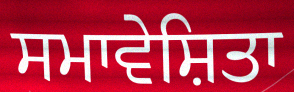
ਸਮਾਵੇਸ਼ਿਤਾ